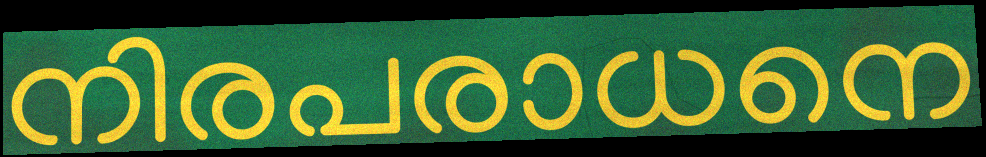
നിരപരാധനെ